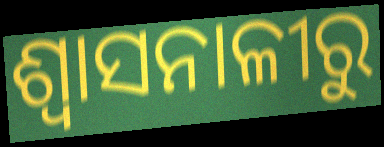
ଶ୍ୱାସନାଳୀରୁ